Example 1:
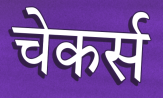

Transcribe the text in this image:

चेकर्स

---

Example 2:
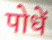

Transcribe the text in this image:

पोधें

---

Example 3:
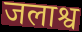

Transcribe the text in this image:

जलाश्व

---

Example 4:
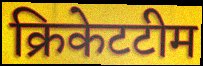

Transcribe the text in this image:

क्रिकेटटीम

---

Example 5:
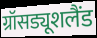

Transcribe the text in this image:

ग्रॉसड्यूशलैंड